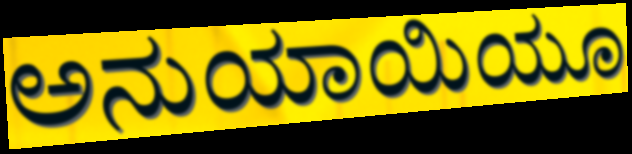
ಅನುಯಾಯಿಯೂ